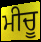
ਮੀਚੂ